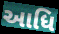
આધિ